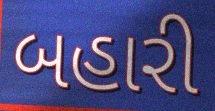
બહારી